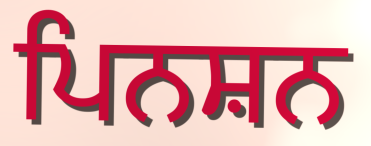
ਪਿਨਸ਼ਨ